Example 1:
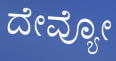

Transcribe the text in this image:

ದೇವ್ಯೋ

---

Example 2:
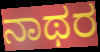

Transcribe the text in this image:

ನಾಥರ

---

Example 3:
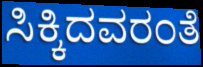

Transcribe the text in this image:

ಸಿಕ್ಕಿದವರಂತೆ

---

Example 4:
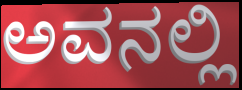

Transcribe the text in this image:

ಅವನಲ್ಲಿ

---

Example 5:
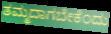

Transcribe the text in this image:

ತಮ್ಮದಾಗಬೇಕೆಂದು